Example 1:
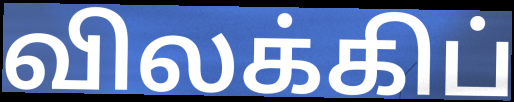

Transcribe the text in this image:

விலக்கிப்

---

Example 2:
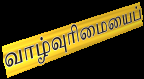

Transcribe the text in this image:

வாழ்வுரிமையைப்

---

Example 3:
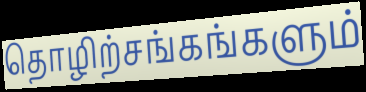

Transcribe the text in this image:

தொழிற்சங்கங்களும்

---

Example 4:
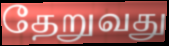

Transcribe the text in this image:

தேறுவது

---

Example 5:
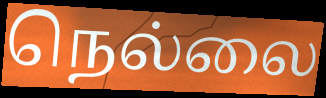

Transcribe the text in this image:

நெல்லை